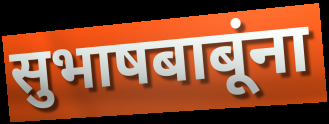
सुभाषबाबूंना